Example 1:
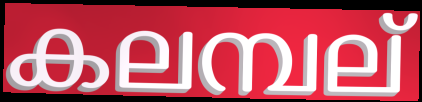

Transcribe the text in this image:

കലമ്പല്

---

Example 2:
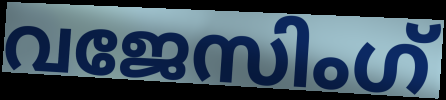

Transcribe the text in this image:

വജേസിംഗ്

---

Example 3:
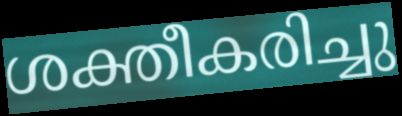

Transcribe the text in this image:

ശക്തീകരിച്ചു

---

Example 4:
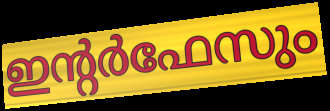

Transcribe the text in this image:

ഇന്റർഫേസും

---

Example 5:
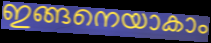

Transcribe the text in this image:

ഇങ്ങനെയാകാം